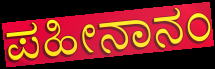
ಪಹೀನಾನಂ